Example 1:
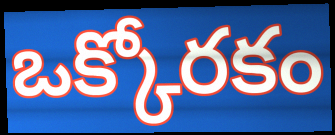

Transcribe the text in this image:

ఒక్కోరకం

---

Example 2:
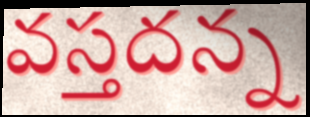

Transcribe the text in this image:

వస్తదన్న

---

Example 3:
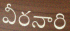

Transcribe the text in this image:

వీరనారి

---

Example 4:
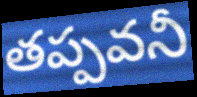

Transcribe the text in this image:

తప్పవనీ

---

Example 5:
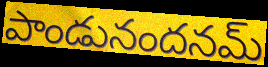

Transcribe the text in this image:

పాండునందనమ్